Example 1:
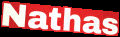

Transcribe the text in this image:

Nathas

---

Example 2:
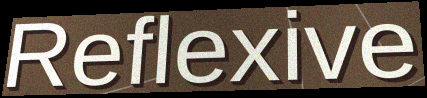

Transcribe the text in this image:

Reflexive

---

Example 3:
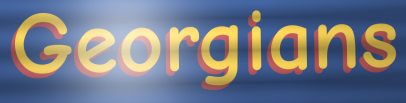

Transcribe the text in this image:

Georgians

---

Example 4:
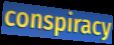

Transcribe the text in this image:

conspiracy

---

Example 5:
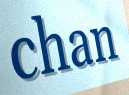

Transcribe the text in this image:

chan